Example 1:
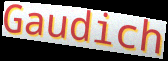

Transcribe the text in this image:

Gaudich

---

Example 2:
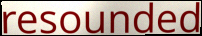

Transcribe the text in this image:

resounded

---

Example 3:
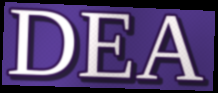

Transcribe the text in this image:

DEA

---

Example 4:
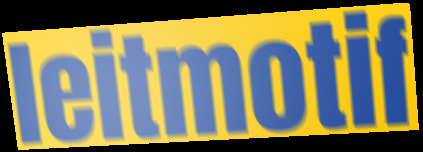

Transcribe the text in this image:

leitmotif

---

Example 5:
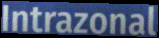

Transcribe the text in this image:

Intrazonal